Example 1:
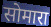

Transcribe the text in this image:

सोमारा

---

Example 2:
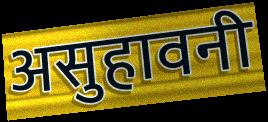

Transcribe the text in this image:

असुहावनी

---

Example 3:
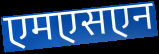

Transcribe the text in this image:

एमएसएन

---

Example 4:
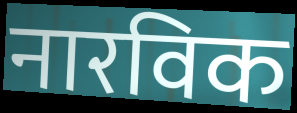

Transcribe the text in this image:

नारविक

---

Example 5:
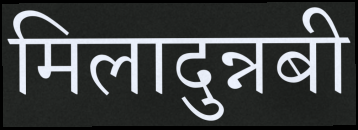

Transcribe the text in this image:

मिलादुन्नबी